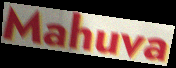
Mahuva